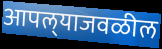
आपल्याजवळील